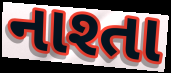
નાશ્તા